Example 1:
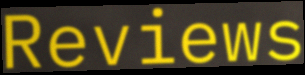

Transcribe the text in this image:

Reviews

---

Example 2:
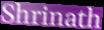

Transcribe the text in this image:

Shrinath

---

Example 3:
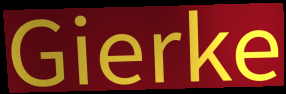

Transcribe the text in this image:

Gierke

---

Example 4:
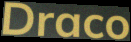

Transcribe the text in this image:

Draco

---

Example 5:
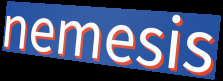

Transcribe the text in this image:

nemesis